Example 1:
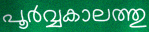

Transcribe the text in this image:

പൂർവ്വകാലത്തു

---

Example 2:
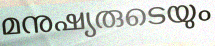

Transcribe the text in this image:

മനുഷ്യരുടെയും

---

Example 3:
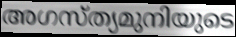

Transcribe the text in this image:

അഗസ്ത്യമുനിയുടെ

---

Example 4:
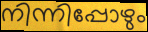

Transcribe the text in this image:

നിന്നിപ്പോഴും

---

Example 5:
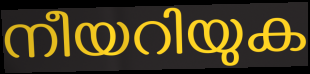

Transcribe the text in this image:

നീയറിയുക